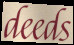
deeds